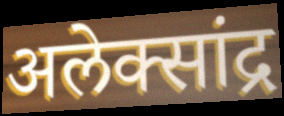
अलेक्सांद्र